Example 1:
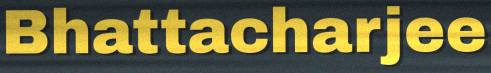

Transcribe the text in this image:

Bhattacharjee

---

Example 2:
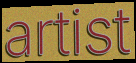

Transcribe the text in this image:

artist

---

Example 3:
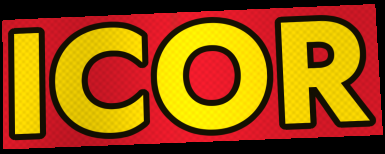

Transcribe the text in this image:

ICOR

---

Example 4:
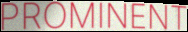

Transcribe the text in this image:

PROMINENT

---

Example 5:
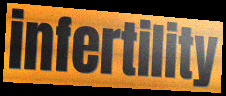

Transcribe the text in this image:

infertility